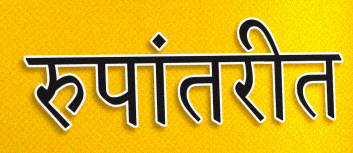
रुपांतरीत